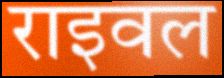
राइवल